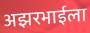
अझरभाईला